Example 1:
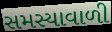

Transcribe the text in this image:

સમસ્યાવાળી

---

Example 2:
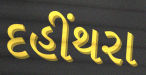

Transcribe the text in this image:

દહીંથરા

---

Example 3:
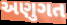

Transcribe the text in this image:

અણુગત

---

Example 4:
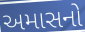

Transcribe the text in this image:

અમાસનો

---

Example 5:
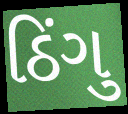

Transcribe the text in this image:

ઠિંગુ